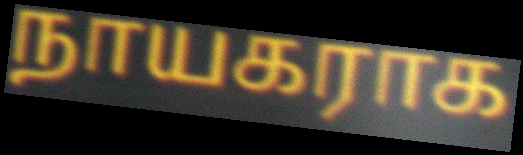
நாயகராக